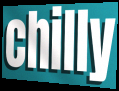
chilly